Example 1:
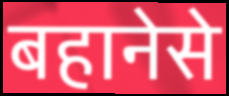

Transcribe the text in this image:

बहानेसे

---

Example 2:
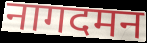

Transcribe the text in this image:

नागदमन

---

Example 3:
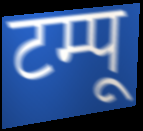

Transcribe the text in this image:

टम्पू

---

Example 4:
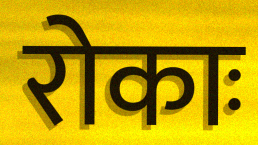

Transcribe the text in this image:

रोकाः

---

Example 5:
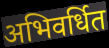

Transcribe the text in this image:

अभिवर्धित